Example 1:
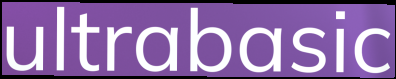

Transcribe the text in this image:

ultrabasic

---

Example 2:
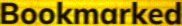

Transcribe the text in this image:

Bookmarked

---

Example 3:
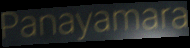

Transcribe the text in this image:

Panayamara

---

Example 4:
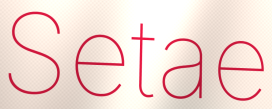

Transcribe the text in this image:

Setae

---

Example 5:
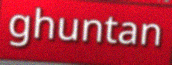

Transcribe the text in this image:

ghuntan